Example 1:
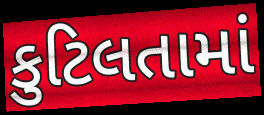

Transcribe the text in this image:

કુટિલતામાં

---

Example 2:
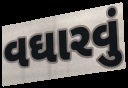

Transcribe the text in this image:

વઘારવું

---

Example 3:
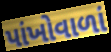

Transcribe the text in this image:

પાંખોવાળાં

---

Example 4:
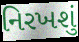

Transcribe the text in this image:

નિરખશું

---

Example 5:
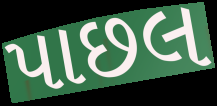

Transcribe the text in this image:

પાછલ